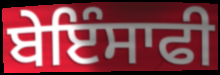
ਬੇਇੰਸਾਫੀ